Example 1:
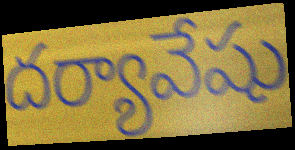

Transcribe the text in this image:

దర్యావేషు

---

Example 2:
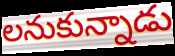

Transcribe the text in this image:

లనుకున్నాడు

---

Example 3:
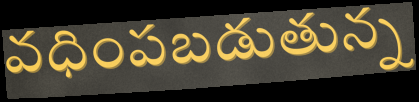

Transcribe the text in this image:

వధింపబడుతున్న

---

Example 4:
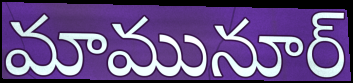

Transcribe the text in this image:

మామునూర్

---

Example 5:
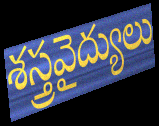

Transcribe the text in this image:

శస్త్రవైద్యులు